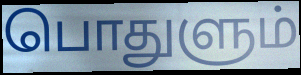
பொதுளும்